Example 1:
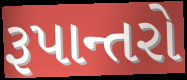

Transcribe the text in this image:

રૂપાન્તરો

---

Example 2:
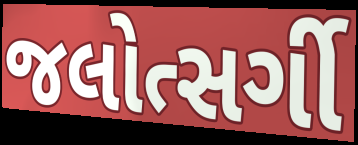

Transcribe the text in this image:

જલોત્સર્ગી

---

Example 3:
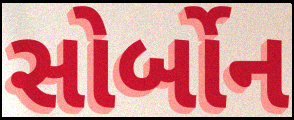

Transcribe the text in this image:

સોર્બોન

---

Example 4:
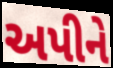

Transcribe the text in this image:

અપીને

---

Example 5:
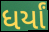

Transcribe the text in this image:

ધર્યાં